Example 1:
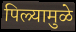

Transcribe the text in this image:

पिल्यामुळे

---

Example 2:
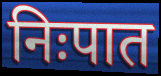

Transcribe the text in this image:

निःपात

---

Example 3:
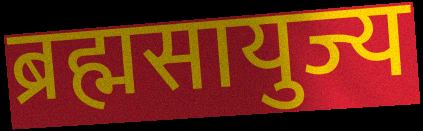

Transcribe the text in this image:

ब्रह्मसायुज्य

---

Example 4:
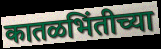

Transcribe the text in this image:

कातळभिंतीच्या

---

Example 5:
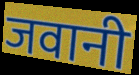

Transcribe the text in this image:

जवानी